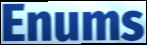
Enums